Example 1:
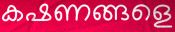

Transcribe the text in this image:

കഷണങ്ങളെ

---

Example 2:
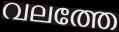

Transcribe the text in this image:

വലത്തേ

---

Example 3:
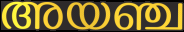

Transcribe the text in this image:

അയഞ്ച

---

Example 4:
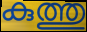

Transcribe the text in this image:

കുത്തു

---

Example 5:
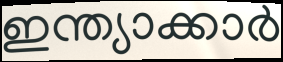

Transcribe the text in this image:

ഇന്ത്യാക്കാർ